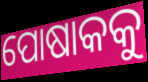
ପୋଷାକକୁ